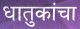
धातुकांचा